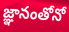
జ్ఞానంతోనో